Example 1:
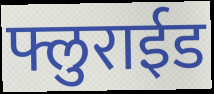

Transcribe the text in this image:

फ्लुराईड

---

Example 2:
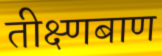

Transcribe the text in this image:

तीक्ष्णबाण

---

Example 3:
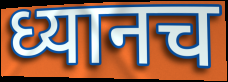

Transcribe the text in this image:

ध्यानच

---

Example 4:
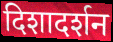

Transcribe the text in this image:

दिशादर्शन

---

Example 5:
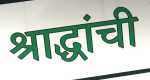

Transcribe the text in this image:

श्राद्धांची